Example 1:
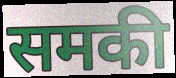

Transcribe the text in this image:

समकी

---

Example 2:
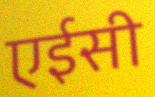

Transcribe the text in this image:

एईसी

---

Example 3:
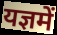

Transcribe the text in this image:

यज्ञमें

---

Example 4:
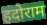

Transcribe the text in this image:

हदोराम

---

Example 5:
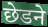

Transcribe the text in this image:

छेडने